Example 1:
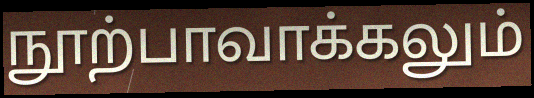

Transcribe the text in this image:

நூற்பாவாக்கலும்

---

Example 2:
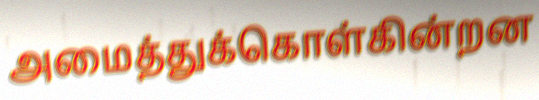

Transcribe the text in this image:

அமைத்துக்கொள்கின்றன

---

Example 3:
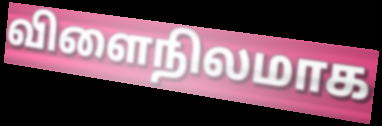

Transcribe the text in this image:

விளைநிலமாக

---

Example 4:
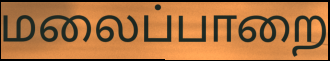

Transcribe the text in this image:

மலைப்பாறை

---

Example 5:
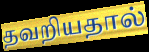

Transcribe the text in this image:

தவறியதால்